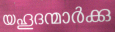
യഹൂദന്മാർക്കു